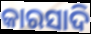
କାରସାଦି